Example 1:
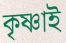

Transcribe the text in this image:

কৃষ্ণাই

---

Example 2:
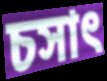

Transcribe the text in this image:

চসাৎ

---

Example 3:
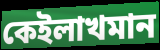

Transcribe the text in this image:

কেইলাখমান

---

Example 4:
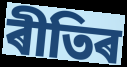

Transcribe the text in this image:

ৰীতিৰ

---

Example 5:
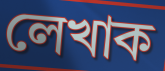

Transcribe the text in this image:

লেখাক